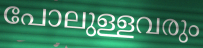
പോലുള്ളവരും